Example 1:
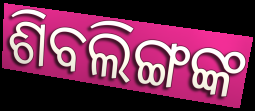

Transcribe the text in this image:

ଶିବଲିଙ୍ଗଙ୍କ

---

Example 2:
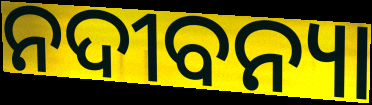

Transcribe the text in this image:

ନଦୀବନ୍ୟା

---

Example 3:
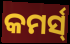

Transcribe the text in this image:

କମର୍ସ୍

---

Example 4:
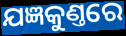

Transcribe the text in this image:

ଯଜ୍ଞକୁଣ୍ତରେ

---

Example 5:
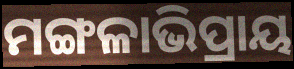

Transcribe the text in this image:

ମଙ୍ଗଳାଭିପ୍ରାୟ